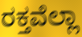
ರಕ್ತವೆಲ್ಲಾ